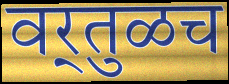
वर्तुळच